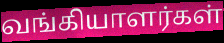
வங்கியாளர்கள்